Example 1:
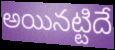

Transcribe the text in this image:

అయినట్టిదే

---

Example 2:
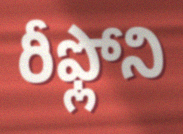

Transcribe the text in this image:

రీఫ్లోని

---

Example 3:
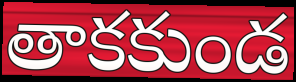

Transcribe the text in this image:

తాకకుండ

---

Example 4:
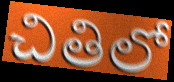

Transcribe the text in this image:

చితిలో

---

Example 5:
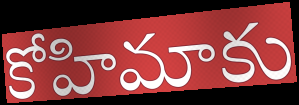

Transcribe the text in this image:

కోహిమాకు